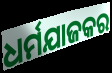
ଧର୍ମଯାଜକର